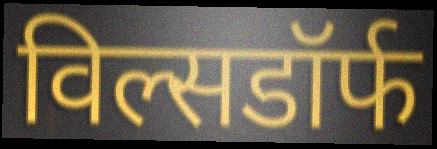
विल्सडॉर्फ